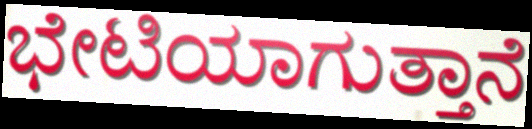
ಭೇಟಿಯಾಗುತ್ತಾನೆ